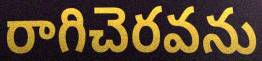
రాగిచెరవను